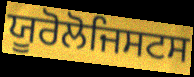
ਯੂਰੋਲੋਜਿਸਟਸ